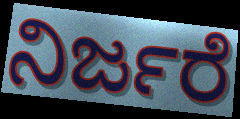
ನಿರ್ಜರೆ